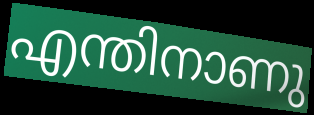
എന്തിനാണു